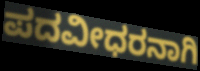
ಪದವೀಧರನಾಗಿ